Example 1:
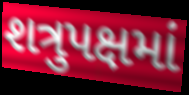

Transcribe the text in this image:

શત્રુપક્ષમાં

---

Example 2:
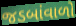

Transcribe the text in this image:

જડબાંવાળો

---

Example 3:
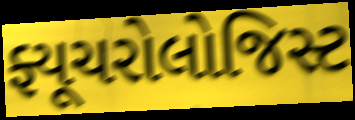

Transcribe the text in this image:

ફ્યૂચરોલોજિસ્ટ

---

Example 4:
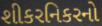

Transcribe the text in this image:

શીકરનિકરનો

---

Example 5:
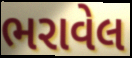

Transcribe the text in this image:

ભરાવેલ